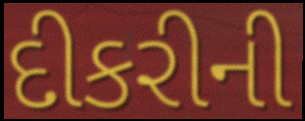
દીકરીની